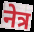
नेत्र